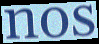
nos